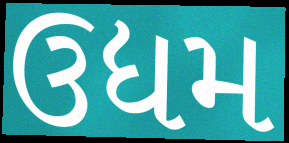
ઉદ્યમ